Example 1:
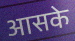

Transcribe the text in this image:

आसके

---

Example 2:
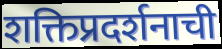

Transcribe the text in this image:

शक्तिप्रदर्शनाची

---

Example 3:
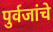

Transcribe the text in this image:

पुर्वजांचे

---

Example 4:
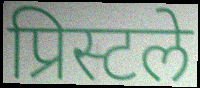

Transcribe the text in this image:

प्रिस्टले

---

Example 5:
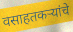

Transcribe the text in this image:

वसाहतकऱ्यांचे